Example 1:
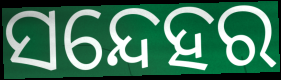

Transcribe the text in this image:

ସନ୍ଦେହର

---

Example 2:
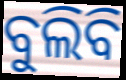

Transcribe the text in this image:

ବୁଲିବି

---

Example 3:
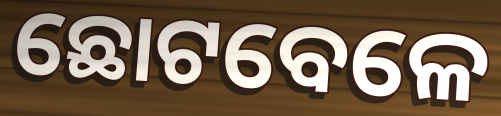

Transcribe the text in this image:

ଛୋଟବେଳେ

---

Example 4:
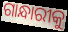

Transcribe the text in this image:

ଗାନ୍ଧାରୀକୁ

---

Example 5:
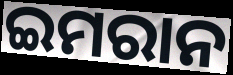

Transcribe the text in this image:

ଇମରାନ